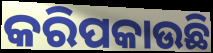
କରିପକାଉଛି